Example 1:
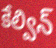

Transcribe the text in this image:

కేల్విన్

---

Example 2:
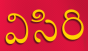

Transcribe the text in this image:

విసిరి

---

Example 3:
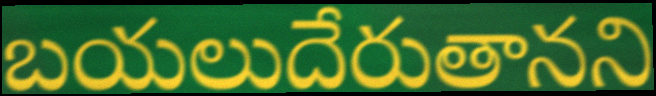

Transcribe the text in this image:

బయలుదేరుతానని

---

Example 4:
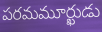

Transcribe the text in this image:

పరమమూర్ఖుడు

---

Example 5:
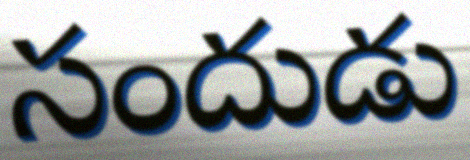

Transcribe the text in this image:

సందుడు